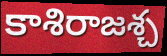
కాశిరాజశ్చ